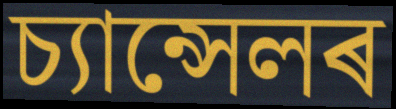
চ্যান্সেলৰ